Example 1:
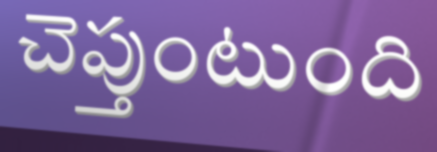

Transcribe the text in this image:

చెప్తుంటుంది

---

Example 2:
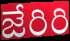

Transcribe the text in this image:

జేరిరి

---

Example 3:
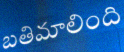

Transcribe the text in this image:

బతిమాలింది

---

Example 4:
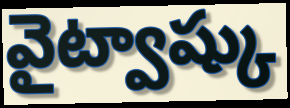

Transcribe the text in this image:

వైట్వాష్కు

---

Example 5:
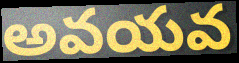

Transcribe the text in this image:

అవయవ